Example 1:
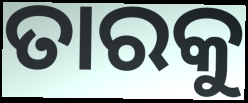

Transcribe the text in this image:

ତାରକୁ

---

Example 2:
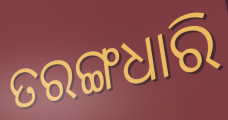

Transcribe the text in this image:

ତରଙ୍ଗଧାରି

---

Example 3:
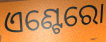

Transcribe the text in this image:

ଏଣ୍ଟେରୋ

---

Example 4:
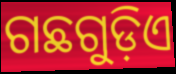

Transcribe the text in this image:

ଗଛଗୁଡ଼ିଏ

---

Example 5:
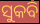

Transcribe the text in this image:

ସୁକବି